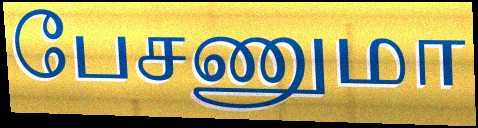
பேசணுமா